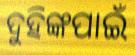
ଦୁହିଙ୍କପାଇଁ